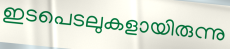
ഇടപെടലുകളായിരുന്നു